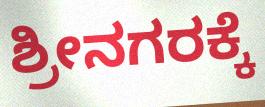
ಶ್ರೀನಗರಕ್ಕೆ